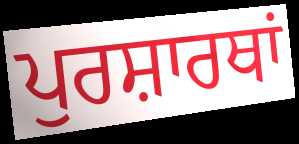
ਪੁਰਸ਼ਾਰਥਾਂ